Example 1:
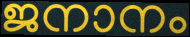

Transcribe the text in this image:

ജനാനം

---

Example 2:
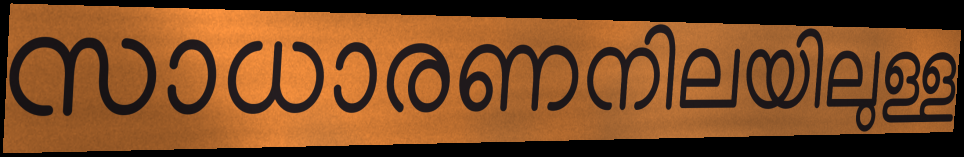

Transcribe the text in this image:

സാധാരണനിലയിലുള്ള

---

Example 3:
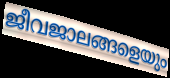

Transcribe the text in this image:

ജീവജാലങ്ങളെയും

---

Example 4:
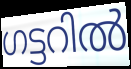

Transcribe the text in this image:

ഗട്ടറിൽ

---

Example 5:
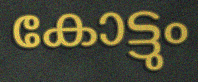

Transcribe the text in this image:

കോട്ടും